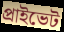
প্ৰাইভেট